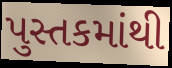
પુસ્તકમાંથી